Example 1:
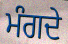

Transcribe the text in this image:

ਮੰਗਦੇ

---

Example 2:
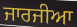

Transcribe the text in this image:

ਜਾਰਜੀਆ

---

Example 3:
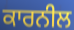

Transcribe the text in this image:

ਕਾਰਨੀਲ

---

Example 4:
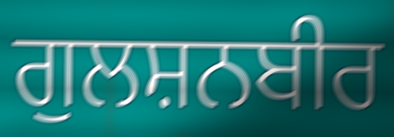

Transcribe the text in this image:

ਗੁਲਸ਼ਨਬੀਰ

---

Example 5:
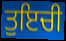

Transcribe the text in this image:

ਤੁਇਚੀ